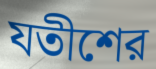
যতীশের